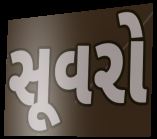
સૂવરો